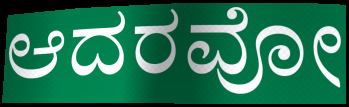
ಆದರವೋ